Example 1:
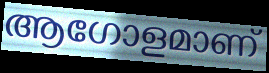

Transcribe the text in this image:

ആഗോളമാണ്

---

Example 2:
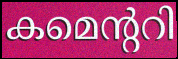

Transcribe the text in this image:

കമെന്ററി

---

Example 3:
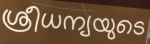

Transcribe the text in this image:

ശ്രീധന്യയുടെ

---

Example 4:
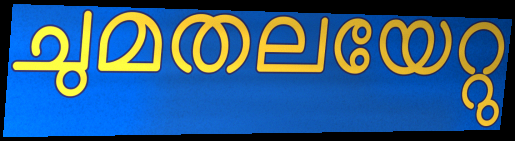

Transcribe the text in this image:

ചുമതലയേറ്റു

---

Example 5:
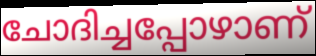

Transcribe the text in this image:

ചോദിച്ചപ്പോഴാണ്